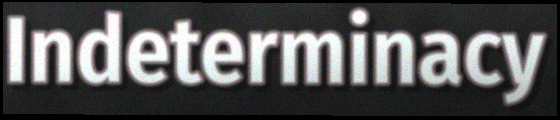
Indeterminacy